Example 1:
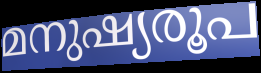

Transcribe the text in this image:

മനുഷ്യരൂപ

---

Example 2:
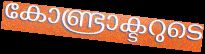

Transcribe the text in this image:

കോണ്ട്രാക്ടറുടെ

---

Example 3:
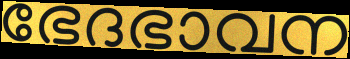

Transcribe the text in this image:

ഭേദഭാവന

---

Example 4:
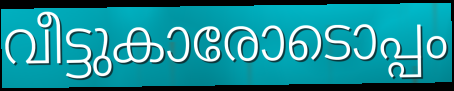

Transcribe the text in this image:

വീട്ടുകാരോടൊപ്പം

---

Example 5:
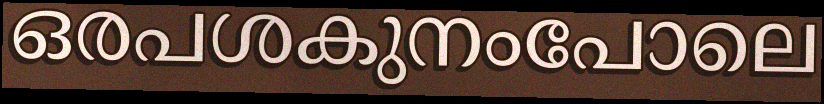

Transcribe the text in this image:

ഒരപശകുനംപോലെ